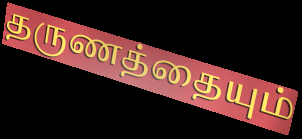
தருணத்தையும்